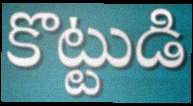
కొట్టుడి